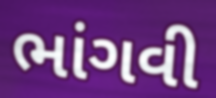
ભાંગવી